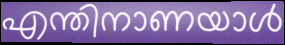
എന്തിനാണയാൾ